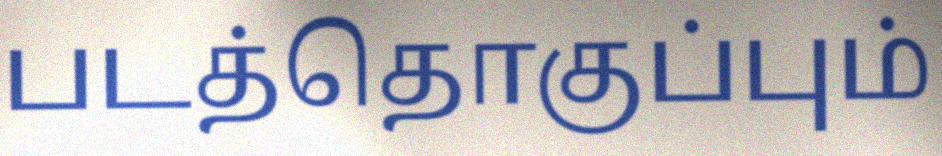
படத்தொகுப்பும்